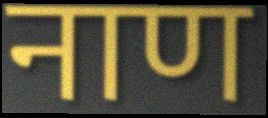
नाण